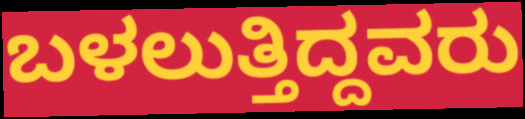
ಬಳಲುತ್ತಿದ್ದವರು